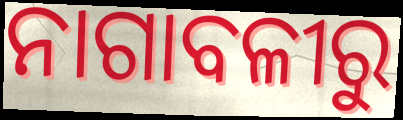
ନାଗାବଳୀରୁ